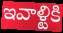
ఇవాళ్టికి